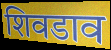
शिवडाव